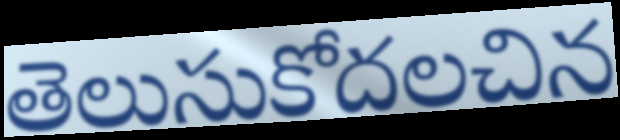
తెలుసుకోదలచిన